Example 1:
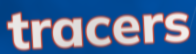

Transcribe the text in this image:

tracers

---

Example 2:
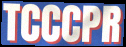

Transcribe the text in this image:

TCCCPR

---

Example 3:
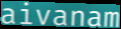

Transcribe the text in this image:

aivanam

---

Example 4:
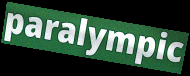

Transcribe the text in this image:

paralympic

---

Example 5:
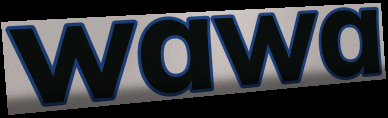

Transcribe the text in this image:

wawa